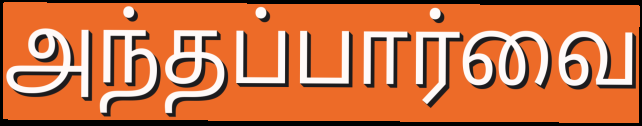
அந்தப்பார்வை